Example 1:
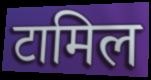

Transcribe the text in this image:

टामिल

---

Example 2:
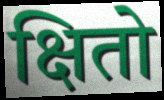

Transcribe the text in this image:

क्षितो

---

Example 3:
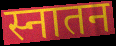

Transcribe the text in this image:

स्नातन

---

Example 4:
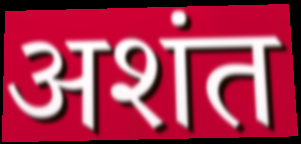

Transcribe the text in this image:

अशंत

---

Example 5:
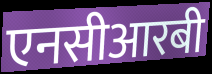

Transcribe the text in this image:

एनसीआरबी